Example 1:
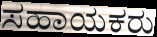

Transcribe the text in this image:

ಸಹಾಯಕರು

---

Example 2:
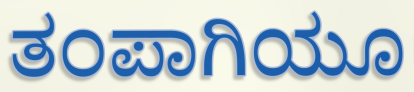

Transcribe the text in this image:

ತಂಪಾಗಿಯೂ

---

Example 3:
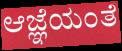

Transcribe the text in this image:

ಆಜ್ಞೆಯಂತೆ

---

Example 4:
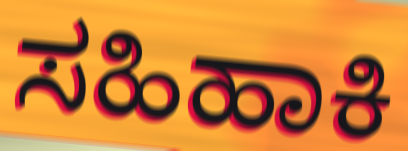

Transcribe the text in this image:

ಸಹಿಹಾಕಿ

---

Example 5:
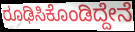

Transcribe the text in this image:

ರೂಢಿಸಿಕೊಂಡಿದ್ದೇನೆ